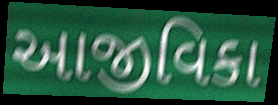
આજીવિકા